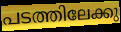
പടത്തിലേക്കു